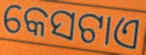
କେସଟାଏ